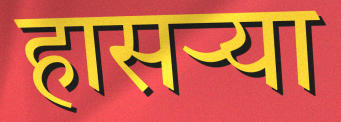
हासऱ्या